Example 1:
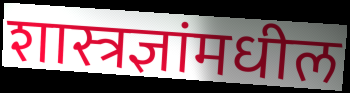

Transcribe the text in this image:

शास्त्रज्ञांमधील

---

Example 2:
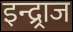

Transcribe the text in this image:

इन्द्र्राज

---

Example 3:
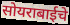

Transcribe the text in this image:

सोयराबाईचे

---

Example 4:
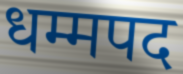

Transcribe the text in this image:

धम्मपद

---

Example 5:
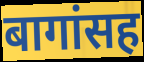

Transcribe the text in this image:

बागांसह